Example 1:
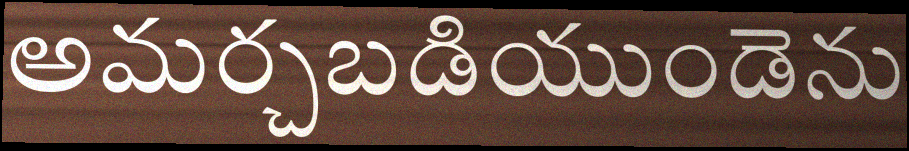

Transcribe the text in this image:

అమర్చబడియుండెను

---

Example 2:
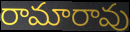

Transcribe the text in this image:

రామారావు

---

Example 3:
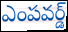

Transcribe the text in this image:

ఎంపవర్డ్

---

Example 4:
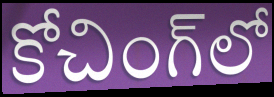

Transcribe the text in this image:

కోచింగ్‌లో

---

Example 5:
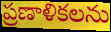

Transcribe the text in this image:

ప్రణాళికలను